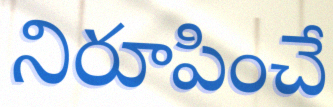
నిరూపించే